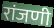
रांजणी